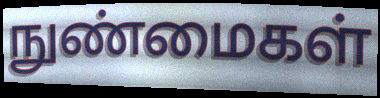
நுண்மைகள்